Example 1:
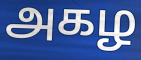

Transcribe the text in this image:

அகழ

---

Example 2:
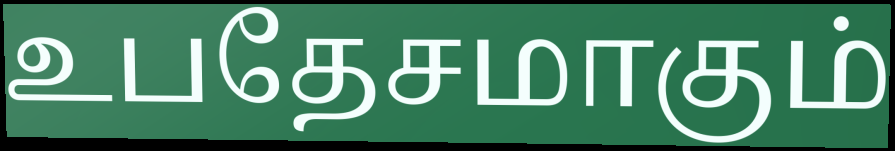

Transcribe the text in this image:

உபதேசமாகும்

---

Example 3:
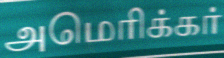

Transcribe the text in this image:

அமெரிக்கர்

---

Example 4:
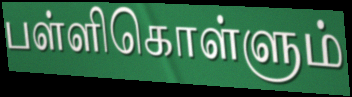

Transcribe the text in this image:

பள்ளிகொள்ளும்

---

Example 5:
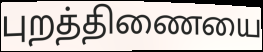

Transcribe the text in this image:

புறத்திணையை